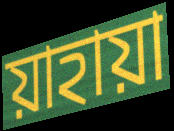
য়াহায়া